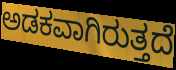
ಅಡಕವಾಗಿರುತ್ತದೆ